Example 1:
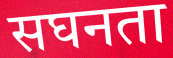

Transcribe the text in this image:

सघनता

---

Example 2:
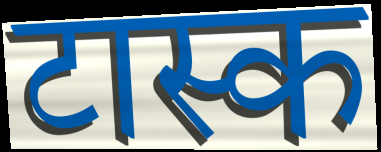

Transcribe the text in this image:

टास्क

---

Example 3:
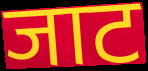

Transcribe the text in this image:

जाट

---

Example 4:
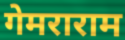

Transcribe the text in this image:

गेमराराम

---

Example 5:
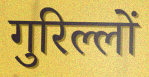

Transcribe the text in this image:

गुरिल्लों